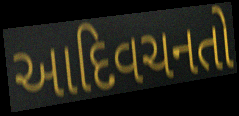
આદિવચનતો